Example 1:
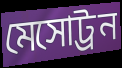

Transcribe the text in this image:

মেসোট্রন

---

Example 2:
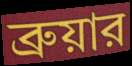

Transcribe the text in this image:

ব্রুয়ার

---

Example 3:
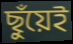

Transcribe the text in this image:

ছুঁয়েই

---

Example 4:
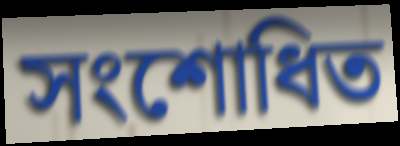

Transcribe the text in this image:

সংশোধিত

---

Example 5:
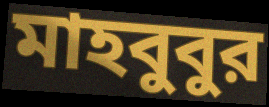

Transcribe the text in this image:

মাহবুবুর